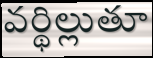
వర్థిల్లుతూ